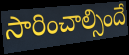
సారించాల్సిందే